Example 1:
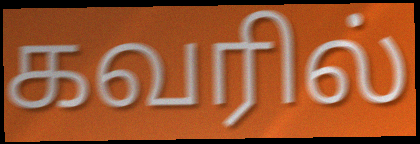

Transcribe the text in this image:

கவரில்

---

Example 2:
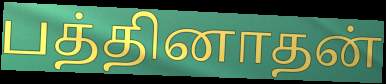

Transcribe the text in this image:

பத்தினாதன்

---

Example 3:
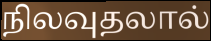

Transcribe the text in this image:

நிலவுதலால்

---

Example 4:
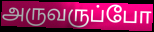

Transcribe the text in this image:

அருவருப்போ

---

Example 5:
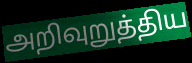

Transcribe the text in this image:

அறிவுறுத்திய